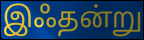
இஃதன்று